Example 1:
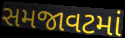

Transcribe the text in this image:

સમજાવટમાં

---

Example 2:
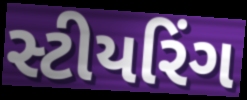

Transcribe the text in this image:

સ્ટીયરિંગ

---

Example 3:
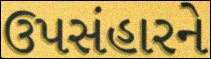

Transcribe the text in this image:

ઉપસંહારને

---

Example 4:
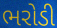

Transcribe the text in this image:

ભરોડી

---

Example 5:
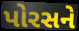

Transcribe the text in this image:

પોરસને